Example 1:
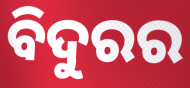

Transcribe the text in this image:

ବିଦୁରର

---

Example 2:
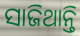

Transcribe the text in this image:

ସାଜିଥାନ୍ତି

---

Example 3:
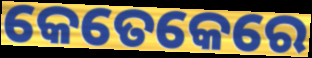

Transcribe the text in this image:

କେତେକେରେ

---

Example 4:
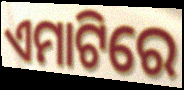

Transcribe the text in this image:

ଏମାଟିରେ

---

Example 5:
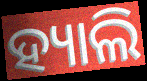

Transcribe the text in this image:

ହ୍ୟାଲି